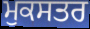
ਮੁਕਸਤਰ